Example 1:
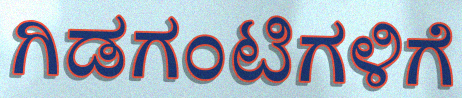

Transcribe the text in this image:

ಗಿಡಗಂಟಿಗಳಿಗೆ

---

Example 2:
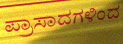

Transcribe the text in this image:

ಪ್ರಾಸಾದಗಳಿಂದ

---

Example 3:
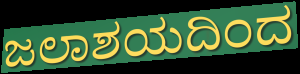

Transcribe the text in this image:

ಜಲಾಶಯದಿಂದ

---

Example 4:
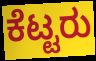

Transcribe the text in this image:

ಕೆಟ್ಟರು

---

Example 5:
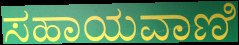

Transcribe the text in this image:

ಸಹಾಯವಾಣಿ